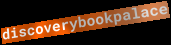
discoverybookpalace